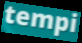
tempi